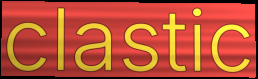
clastic